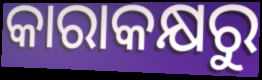
କାରାକକ୍ଷରୁ